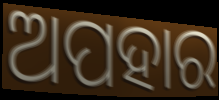
ଅପହାର